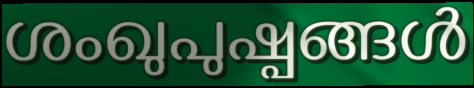
ശംഖുപുഷ്പങ്ങൾ